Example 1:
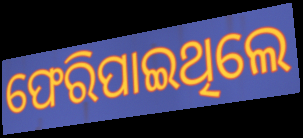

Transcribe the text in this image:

ଫେରିପାଇଥିଲେ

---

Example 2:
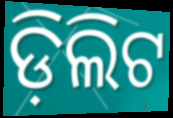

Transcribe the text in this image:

ଡ଼ିଲିଟ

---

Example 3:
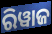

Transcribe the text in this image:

ରିୱାଜ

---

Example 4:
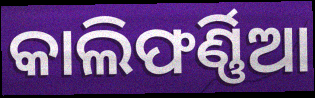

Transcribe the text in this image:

କାଲିଫର୍ଣ୍ଣିଆ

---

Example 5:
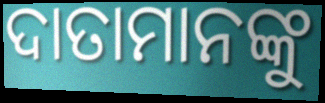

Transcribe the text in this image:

ଦାତାମାନଙ୍କୁ